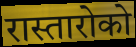
रास्तारोको